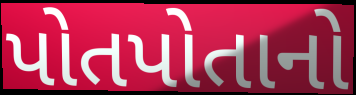
પોતપોતાનો